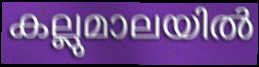
കല്ലുമാലയിൽ